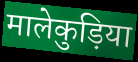
मालेकुड़िया